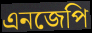
এনজেপি